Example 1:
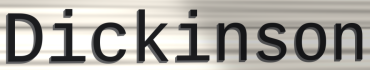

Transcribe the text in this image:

Dickinson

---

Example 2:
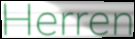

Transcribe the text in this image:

Herren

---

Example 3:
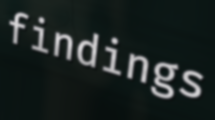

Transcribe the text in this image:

findings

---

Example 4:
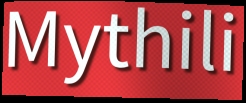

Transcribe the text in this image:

Mythili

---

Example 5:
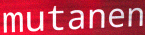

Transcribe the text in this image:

mutanen